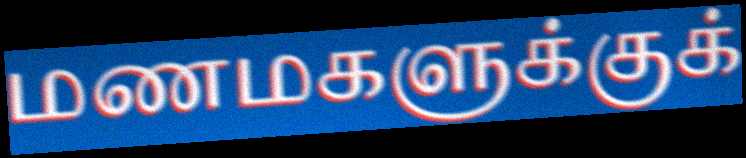
மணமகளுக்குக்